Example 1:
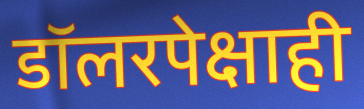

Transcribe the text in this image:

डॉलरपेक्षाही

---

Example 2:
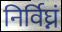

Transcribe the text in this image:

निर्विघ्नं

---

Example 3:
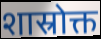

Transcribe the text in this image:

शास्रोक्त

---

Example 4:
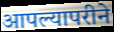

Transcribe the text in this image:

आपल्यापरीने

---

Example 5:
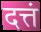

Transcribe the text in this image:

दत्तं